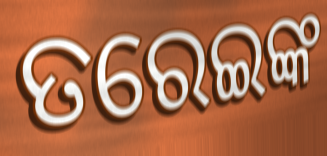
ତରେଇଙ୍କ